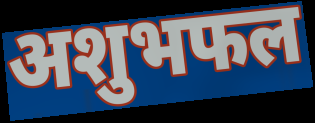
अशुभफल